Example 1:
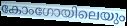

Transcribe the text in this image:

കോംഗോയിലെയും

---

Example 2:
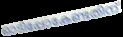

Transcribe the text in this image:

ഓടിപ്പോകേണ്ടതിന്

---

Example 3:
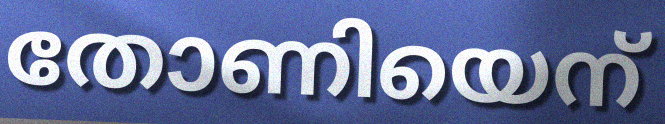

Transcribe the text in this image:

തോണിയെന്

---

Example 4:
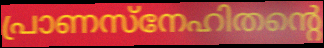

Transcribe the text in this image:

പ്രാണസ്നേഹിതന്റെ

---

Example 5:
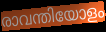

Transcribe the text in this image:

രാവന്തിയോളം